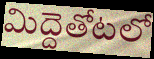
మిద్దెతోటలో